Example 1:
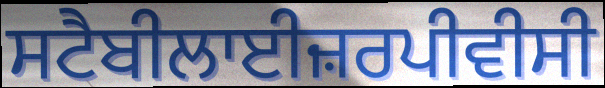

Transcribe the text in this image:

ਸਟੈਬੀਲਾਈਜ਼ਰਪੀਵੀਸੀ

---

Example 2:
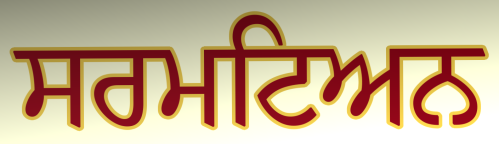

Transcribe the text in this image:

ਸਰਮਟਿਅਨ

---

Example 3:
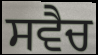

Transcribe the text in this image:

ਸਵੈਚ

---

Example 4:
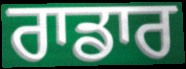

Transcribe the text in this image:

ਰਾਡਾਰ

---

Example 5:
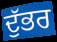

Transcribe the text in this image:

ਦੁੱਭਰ